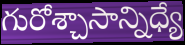
గురోశ్చాసాన్నిధ్యే